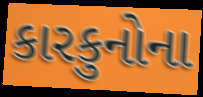
કારકુનોના